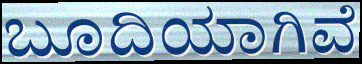
ಬೂದಿಯಾಗಿವೆ